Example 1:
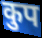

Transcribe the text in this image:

कुप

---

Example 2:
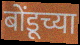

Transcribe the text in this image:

बोंडूच्या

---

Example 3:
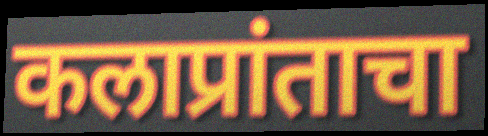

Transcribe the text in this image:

कलाप्रांताचा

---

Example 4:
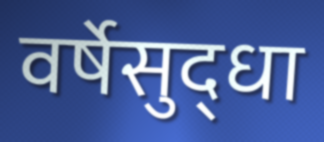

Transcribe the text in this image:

वर्षेसुद्धा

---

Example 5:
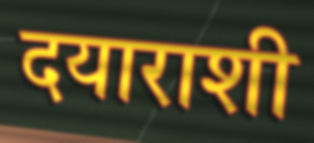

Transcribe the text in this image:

दयाराशी